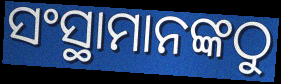
ସଂସ୍ଥାମାନଙ୍କଠୁ